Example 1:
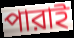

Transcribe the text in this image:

পারাই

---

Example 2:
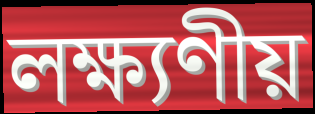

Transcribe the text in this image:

লক্ষ্যণীয়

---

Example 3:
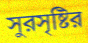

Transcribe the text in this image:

সুরসৃষ্টির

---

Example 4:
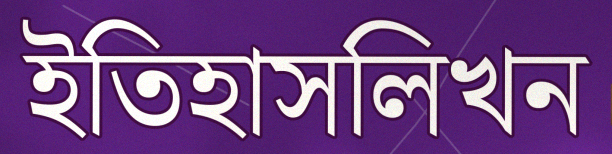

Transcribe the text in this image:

ইতিহাসলিখন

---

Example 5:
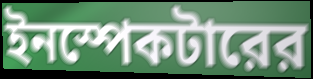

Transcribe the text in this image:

ইনস্পেকটারের